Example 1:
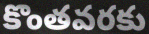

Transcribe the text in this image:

కొంతవరకు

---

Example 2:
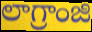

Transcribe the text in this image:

లాగ్రాంజి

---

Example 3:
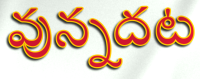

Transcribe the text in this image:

వున్నదట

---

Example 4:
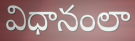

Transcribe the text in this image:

విధానంలా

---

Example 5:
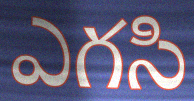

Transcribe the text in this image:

ఎగసి